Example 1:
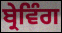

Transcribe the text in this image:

ਬ੍ਰੇਵਿੰਗ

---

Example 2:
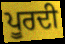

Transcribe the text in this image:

ਪੂਰਦੀ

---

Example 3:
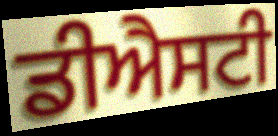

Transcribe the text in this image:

ਡੀਐਸਟੀ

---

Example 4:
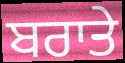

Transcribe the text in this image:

ਬਰਾਤੇ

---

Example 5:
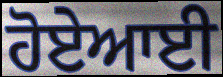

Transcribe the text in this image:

ਹੋਏਆਈ